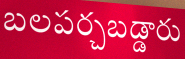
బలపర్చబడ్డారు